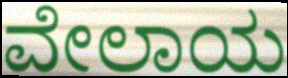
ವೇಲಾಯ